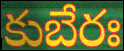
కుబేరః